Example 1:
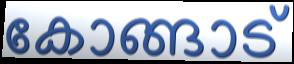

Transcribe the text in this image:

കോങ്ങാട്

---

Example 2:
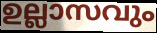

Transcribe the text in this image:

ഉല്ലാസവും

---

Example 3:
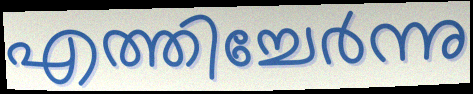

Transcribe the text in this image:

എത്തിച്ചേർന്നു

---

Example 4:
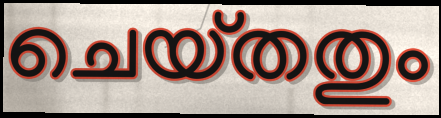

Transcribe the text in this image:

ചെയ്‌തതും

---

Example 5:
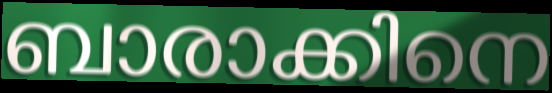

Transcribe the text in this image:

ബാരാക്കിനെ